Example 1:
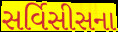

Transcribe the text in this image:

સર્વિસીસના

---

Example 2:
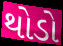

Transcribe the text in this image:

થોડો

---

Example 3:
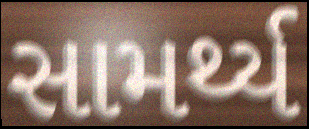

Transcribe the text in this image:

સામર્થ્ય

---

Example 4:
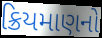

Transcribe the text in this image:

ક્રિયમાણનો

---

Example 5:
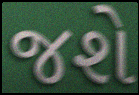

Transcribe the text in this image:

જશે